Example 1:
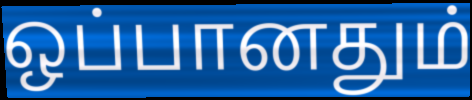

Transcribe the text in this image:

ஒப்பானதும்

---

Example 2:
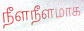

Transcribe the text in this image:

நீளநீளமாக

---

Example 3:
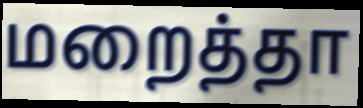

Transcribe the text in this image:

மறைத்தா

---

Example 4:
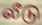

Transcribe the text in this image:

லீடு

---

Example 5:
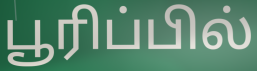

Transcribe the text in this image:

பூரிப்பில்